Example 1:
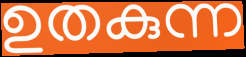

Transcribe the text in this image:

ഉതകുന്ന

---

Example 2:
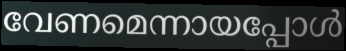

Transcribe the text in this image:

വേണമെന്നായപ്പോൾ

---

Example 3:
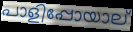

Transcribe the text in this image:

പാളിപ്പോയാല്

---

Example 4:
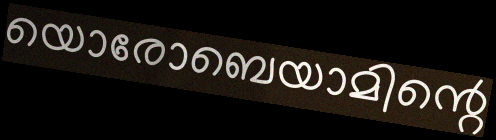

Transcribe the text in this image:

യൊരോബെയാമിന്റെ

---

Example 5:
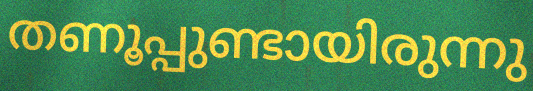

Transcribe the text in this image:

തണൂപ്പുണ്ടായിരുന്നു